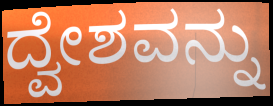
ದ್ವೇಶವನ್ನು